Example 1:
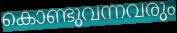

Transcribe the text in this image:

കൊണ്ടുവന്നവരും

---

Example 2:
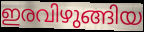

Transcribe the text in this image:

ഇരവിഴുങ്ങിയ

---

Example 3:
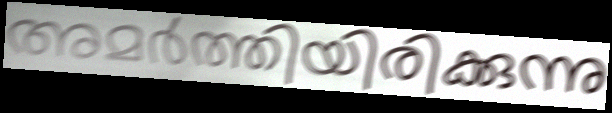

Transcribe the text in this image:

അമർത്തിയിരിക്കുന്നു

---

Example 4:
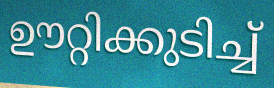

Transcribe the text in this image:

ഊറ്റിക്കുടിച്ച്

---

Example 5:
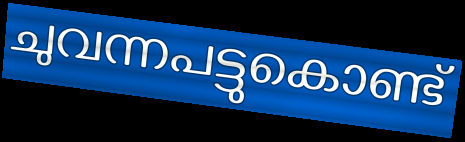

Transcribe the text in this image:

ചുവന്നപട്ടുകൊണ്ട്